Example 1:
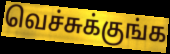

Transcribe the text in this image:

வெச்சுக்குங்க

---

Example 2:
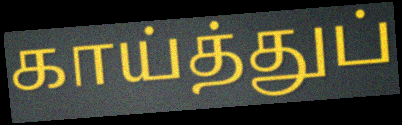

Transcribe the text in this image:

காய்த்துப்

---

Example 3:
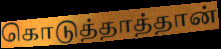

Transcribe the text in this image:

கொடுத்தாத்தான்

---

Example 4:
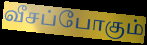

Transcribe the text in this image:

வீசப்போகும்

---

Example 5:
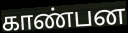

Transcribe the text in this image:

காண்பன